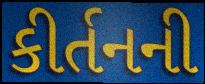
કીર્તનની